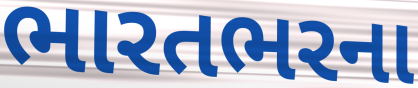
ભારતભરના